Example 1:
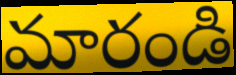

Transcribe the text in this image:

మారండి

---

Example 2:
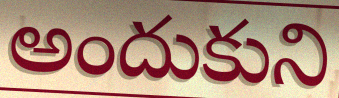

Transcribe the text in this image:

అందుకుని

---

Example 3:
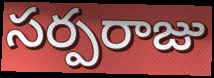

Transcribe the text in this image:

సర్పరాజు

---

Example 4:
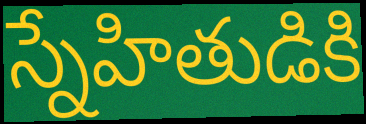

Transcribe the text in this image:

స్నేహితుడికి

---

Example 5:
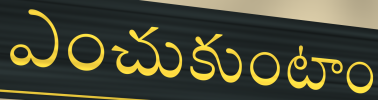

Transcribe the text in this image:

ఎంచుకుంటాం